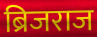
ब्रिजराज